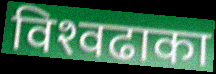
विश्वढाका